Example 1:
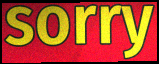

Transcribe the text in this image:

sorry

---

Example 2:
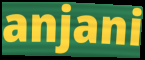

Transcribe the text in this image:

anjani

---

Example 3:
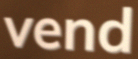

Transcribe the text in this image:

vend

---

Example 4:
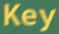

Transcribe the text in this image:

Key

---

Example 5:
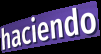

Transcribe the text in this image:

haciendo